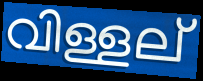
വിള്ളല്